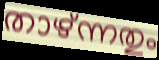
താഴ്ന്നതും